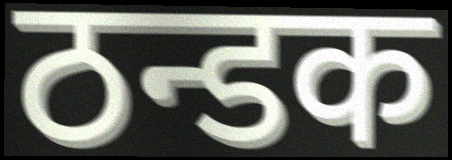
ठन्डक